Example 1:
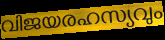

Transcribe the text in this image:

വിജയരഹസ്യവും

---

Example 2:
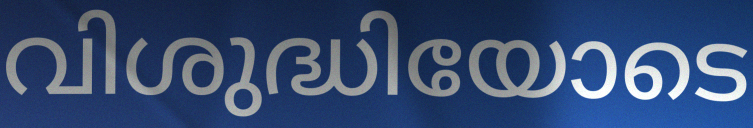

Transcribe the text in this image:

വിശുദ്ധിയോടെ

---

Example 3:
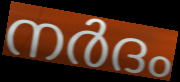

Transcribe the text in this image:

നർദം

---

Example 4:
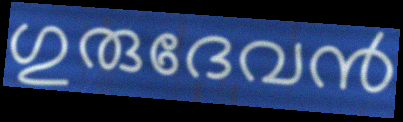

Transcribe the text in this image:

ഗുരുദേവൻ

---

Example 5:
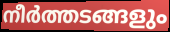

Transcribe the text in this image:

നീർത്തടങ്ങളും